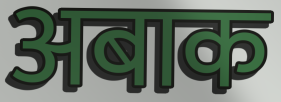
अबाक